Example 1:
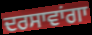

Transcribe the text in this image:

ਦਰਸਾਵਾਂਗਾ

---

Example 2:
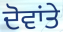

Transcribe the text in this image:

ਦੋਵਾਂਤੇ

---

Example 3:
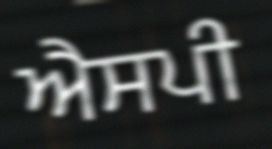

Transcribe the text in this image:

ਐਸਪੀ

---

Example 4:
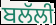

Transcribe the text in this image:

ਬਲੱਲੀ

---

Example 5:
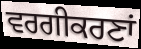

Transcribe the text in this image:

ਵਰਗੀਕਰਣਾਂ